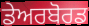
ਡੇਅਰਬੋਰਡ